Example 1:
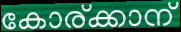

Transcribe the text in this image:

കോര്ക്കാന്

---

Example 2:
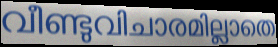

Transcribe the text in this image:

വീണ്ടുവിചാരമില്ലാതെ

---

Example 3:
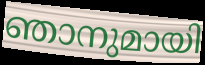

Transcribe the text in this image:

ഞാനുമായി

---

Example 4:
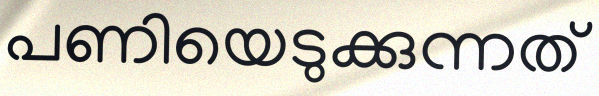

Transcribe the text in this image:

പണിയെടുക്കുന്നത്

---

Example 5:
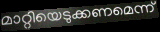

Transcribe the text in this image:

മാറ്റിയെടുക്കണമെന്ന്